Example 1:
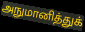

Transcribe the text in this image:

அநுமானித்துக்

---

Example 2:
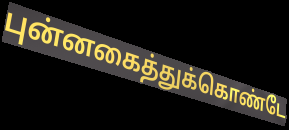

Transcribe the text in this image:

புன்னகைத்துக்கொண்டே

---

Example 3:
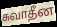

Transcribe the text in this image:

சுவாதீன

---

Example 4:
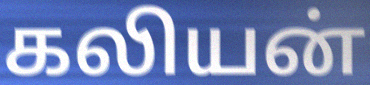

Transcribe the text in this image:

கலியன்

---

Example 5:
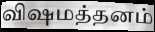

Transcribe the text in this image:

விஷமத்தனம்